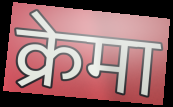
क्रेमा